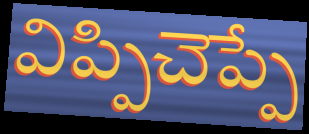
విప్పిచెప్పే